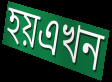
হয়এখন